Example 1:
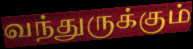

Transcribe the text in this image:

வந்துருக்கும்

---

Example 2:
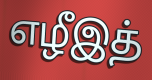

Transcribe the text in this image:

எழீஇத்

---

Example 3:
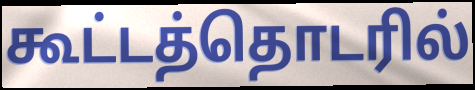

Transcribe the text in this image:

கூட்டத்தொடரில்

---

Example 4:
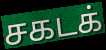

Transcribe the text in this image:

சகடக்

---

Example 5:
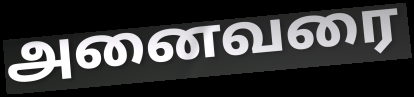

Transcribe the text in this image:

அனைவரை